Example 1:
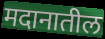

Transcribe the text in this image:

मदानातील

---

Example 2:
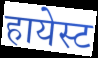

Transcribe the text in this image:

हायेस्ट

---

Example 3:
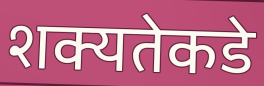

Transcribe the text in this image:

शक्यतेकडे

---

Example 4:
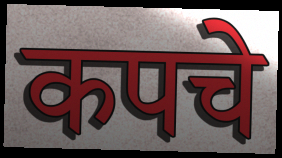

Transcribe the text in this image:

कपचे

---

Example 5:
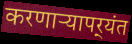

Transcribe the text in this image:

करणाऱ्यापर्यंत